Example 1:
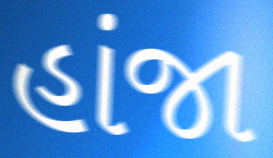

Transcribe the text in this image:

હાંજા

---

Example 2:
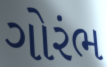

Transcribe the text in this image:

ગોરંભ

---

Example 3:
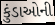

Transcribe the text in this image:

કુંડાઓની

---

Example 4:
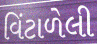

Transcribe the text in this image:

વિંટાળેલી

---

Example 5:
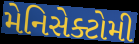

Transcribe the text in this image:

મેનિસેક્ટોમી